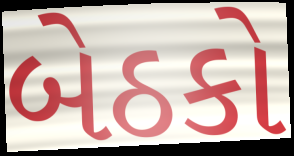
બેઠકો